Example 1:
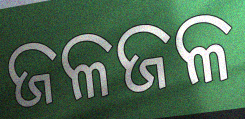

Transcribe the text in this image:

ଜଳଜଳ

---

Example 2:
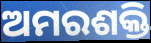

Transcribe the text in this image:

ଅମରଶକ୍ତି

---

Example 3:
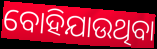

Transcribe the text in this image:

ବୋହିଯାଉଥିବା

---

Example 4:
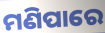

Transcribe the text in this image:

ମଣିପାରେ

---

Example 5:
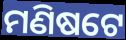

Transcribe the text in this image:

ମଣିଷଟେ